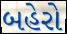
બહેરો